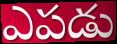
ఎపడు